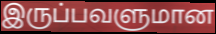
இருப்பவளுமான